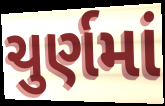
ચુર્ણમાં